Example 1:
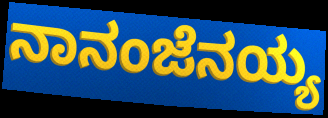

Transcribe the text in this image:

ನಾನಂಜೆನಯ್ಯ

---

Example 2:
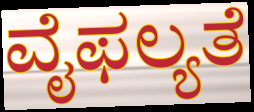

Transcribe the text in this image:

ವೈಫಲ್ಯತೆ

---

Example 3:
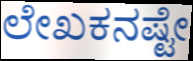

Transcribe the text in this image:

ಲೇಖಕನಷ್ಟೇ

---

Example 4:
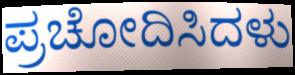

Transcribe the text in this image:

ಪ್ರಚೋದಿಸಿದಳು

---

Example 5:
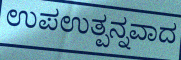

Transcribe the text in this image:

ಉಪಉತ್ಪನ್ನವಾದ